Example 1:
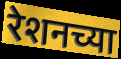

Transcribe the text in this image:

रेशनच्या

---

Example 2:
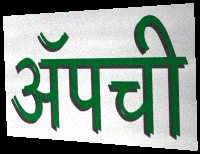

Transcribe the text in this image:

ॲपची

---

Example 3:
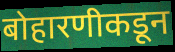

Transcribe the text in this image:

बोहारणीकडून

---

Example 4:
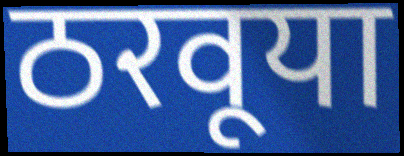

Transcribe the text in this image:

ठरवूया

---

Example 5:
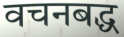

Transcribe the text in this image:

वचनबद्ध